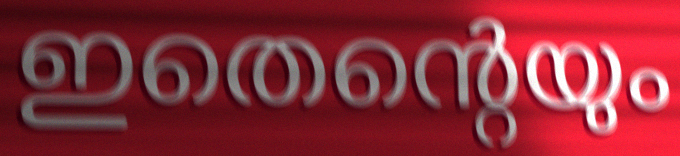
ഇതെന്റെയും